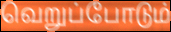
வெறுப்போடும்